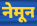
नेमून